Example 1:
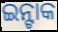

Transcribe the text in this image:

ଇନ୍ଟାକ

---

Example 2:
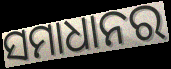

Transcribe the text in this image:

ସମାଧାନର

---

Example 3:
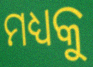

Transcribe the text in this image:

ମଧ୍ୟକୁ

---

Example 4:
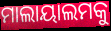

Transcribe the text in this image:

ମାଲାୟାଲମକୁ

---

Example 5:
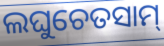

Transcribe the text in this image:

ଲଘୁଚେତସାମ୍